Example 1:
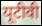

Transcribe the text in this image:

यूटीवी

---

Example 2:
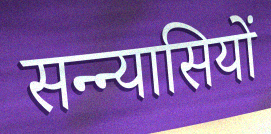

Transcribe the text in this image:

सन्न्यासियों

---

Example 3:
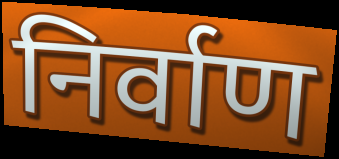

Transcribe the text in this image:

निर्वाण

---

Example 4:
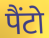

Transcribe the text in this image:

पैंटो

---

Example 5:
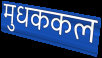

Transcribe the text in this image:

मुधककल